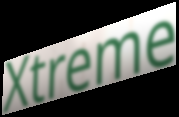
Xtreme